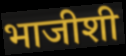
भाजीशी